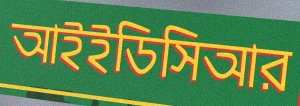
আইইডিসিআর